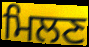
ਮਿਲਣ